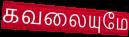
கவலையுமே